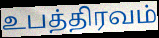
உபத்திரவம்